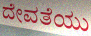
ದೇವತೆಯು